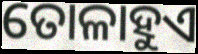
ତୋଳାହୁଏ